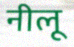
नीलू